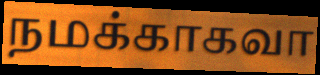
நமக்காகவா